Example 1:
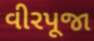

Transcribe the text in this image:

વીરપૂજા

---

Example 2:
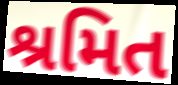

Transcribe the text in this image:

શ્રમિત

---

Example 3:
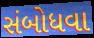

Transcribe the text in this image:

સંબોધવા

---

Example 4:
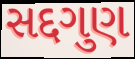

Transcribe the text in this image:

સદ્દગુણ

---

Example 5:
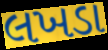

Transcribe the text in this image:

લખડા